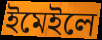
ইমেইলে